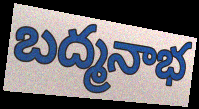
బద్మనాభ